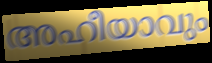
അഹീയാവും